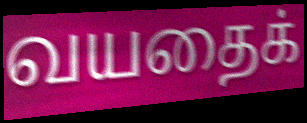
வயதைக்